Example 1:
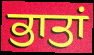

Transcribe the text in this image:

ਭਾਤਾਂ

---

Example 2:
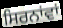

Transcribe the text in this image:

ਸਿਰਨਾਂਵਾਂ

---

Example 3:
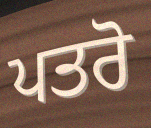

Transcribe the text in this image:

ਪਤਰੋ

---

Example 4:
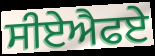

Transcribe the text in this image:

ਸੀਏਐਫਏ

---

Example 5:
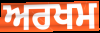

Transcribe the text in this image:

ਅਰਖਮ